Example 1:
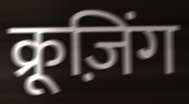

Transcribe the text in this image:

क्रूज़िंग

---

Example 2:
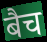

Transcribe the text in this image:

बैच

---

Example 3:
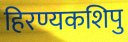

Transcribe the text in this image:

हिरण्यकशिपु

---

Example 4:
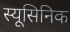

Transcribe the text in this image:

स्यूसिनिक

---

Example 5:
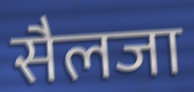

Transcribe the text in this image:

सैलजा